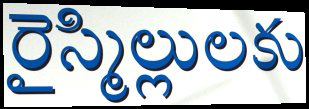
రైస్మిల్లులకు